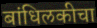
बांधिलकीचा